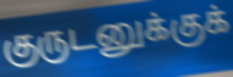
குருடனுக்குக்